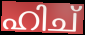
ഹിച്